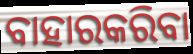
ବାହାରକରିବା